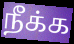
நீக்க